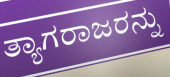
ತ್ಯಾಗರಾಜರನ್ನು